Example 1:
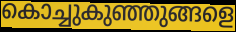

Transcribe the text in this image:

കൊച്ചുകുഞ്ഞുങ്ങളെ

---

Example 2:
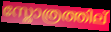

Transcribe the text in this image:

സ്തോത്രത്തില്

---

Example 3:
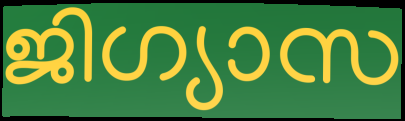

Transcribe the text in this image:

ജിഗ്യാസ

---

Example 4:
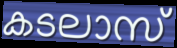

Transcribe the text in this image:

കടലാസ്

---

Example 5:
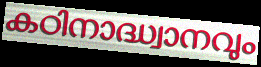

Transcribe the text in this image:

കഠിനാദ്ധ്വാനവും